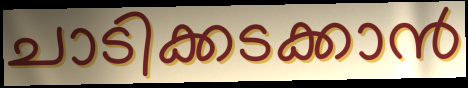
ചാടിക്കടക്കാൻ